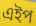
এইপ